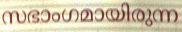
സഭാംഗമായിരുന്ന